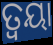
ତ୍ୱୟା